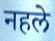
नहले